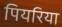
पियरिया